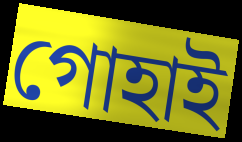
গোহাই